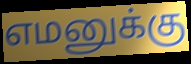
எமனுக்கு